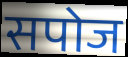
सपोज